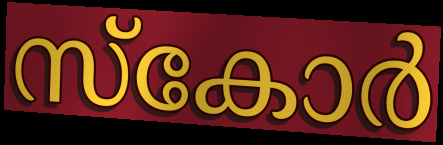
സ്കോർ